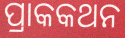
ପ୍ରାକକଥନ